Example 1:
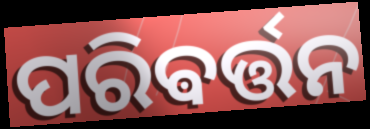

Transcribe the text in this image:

ପରିଵର୍ତ୍ତନ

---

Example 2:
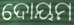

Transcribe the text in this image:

ଦୋୟମ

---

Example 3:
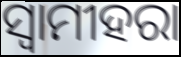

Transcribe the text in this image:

ସ୍ଵାମୀହରା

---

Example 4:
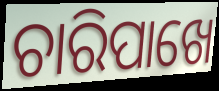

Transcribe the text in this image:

ଚାରିପାଖେ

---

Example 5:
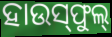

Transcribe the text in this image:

ହାଉସ୍‌ଫୁଲ୍